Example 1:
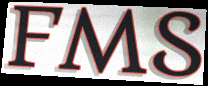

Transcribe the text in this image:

FMS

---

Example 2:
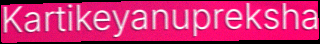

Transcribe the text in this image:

Kartikeyanupreksha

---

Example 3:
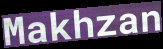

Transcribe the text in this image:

Makhzan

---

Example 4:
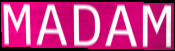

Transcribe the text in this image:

MADAM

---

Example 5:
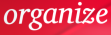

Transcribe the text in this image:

organize